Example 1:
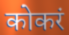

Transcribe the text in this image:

कोकरं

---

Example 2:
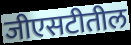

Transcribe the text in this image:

जीएसटीतील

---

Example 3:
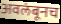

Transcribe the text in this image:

अवलंबूनच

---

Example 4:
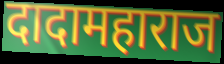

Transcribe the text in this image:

दादामहाराज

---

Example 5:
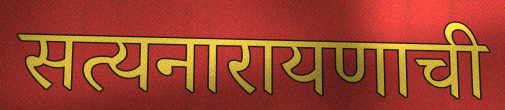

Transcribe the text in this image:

सत्यनारायणाची